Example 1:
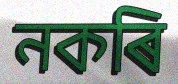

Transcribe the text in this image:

নকৰি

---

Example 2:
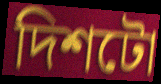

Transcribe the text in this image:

দিশটো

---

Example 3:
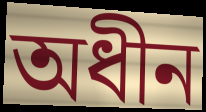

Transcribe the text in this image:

অধীন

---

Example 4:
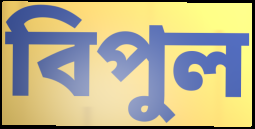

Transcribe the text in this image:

বিপুল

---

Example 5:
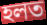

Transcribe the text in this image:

হলত